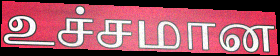
உச்சமான